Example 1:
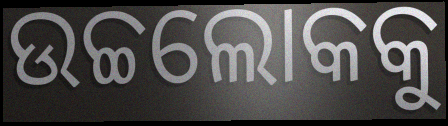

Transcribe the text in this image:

ଉଚ୍ଚଲୋକକୁ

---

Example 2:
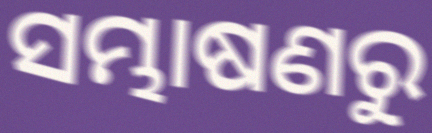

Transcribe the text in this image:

ସମ୍ଭାଷଣରୁ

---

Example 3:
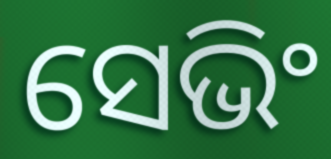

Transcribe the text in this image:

ସେଭିଂ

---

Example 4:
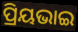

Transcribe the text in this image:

ପ୍ରିୟଭାଇ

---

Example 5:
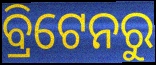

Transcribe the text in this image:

ବ୍ରିଟେନରୁ